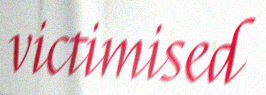
victimised